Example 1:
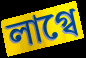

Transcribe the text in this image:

লাগ্বে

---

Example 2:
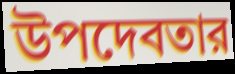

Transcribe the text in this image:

উপদেবতার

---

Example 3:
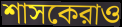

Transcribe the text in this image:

শাসকেরাও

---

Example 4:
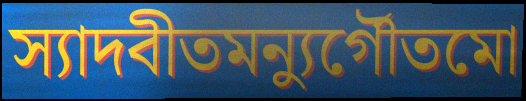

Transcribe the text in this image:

স্যাদবীতমন্যুর্গৌতমো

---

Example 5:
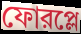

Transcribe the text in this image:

ফোরপ্লে